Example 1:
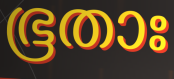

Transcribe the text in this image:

ഭൂതാഃ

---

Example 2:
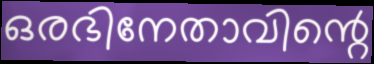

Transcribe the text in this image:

ഒരഭിനേതാവിന്റെ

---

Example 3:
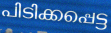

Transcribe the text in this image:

പിടിക്കപ്പെട്ട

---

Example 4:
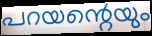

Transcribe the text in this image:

പറയന്റെയും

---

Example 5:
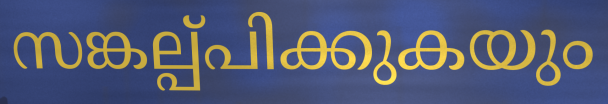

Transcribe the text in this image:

സങ്കല്പ്പിക്കുകയും